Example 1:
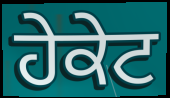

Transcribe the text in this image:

ਹੇਕੇਟ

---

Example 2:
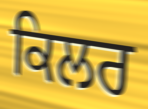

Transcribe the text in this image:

ਕਿਲਰ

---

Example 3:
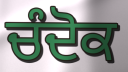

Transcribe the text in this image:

ਚੰਦੋਕ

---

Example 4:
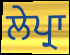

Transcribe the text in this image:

ਲੇਪ੍ਰਾ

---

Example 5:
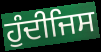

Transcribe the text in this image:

ਹੁੰਦੀਜਿਸ